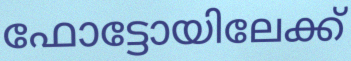
ഫോട്ടോയിലേക്ക്